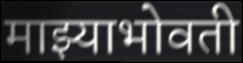
माझ्याभोवती